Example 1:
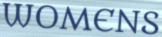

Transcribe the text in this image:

WOMENS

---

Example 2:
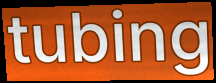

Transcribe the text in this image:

tubing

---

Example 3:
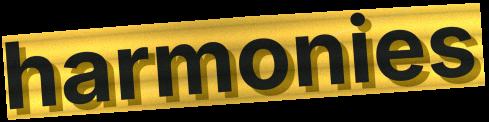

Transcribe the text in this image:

harmonies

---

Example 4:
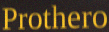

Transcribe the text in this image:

Prothero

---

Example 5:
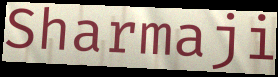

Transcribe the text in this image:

Sharmaji